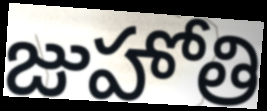
జుహోతి